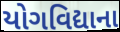
યોગવિદ્યાના